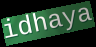
idhaya